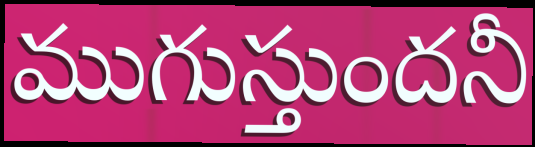
ముగుస్తుందనీ